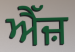
ਐੱਜ਼